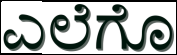
ಎಲೆಗೊ